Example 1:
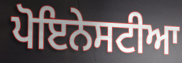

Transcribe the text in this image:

ਪੋਇਨੇਸਟੀਆ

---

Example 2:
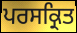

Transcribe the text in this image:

ਪਰਸਕ੍ਰਿਤ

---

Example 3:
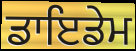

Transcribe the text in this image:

ਡਾਇਡੇਮ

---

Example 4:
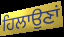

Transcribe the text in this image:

ਹਿਲਾਉਣਾਂ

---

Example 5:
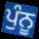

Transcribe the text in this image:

ਪੁੰਨੂ